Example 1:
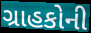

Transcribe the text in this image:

ગ્રાહકોની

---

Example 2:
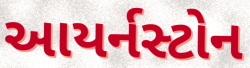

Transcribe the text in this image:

આયર્નસ્ટોન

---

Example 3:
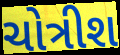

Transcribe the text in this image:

ચોત્રીશ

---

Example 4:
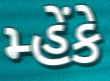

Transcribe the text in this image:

મ્હેંકે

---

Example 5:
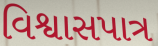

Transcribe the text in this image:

વિશ્વાસપાત્ર